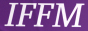
IFFM